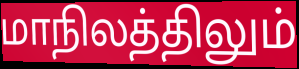
மாநிலத்திலும்